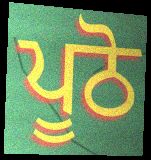
ਪੂਠੋ